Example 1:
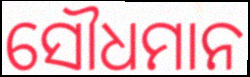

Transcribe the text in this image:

ସୌଧମାନ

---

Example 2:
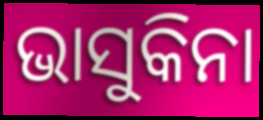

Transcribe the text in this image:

ଭାସୁକିନା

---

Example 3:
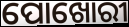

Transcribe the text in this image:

ପୋଖୋରୀ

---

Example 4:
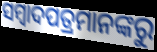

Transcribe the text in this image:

ସମ୍ୱାଦପତ୍ରମାନଙ୍କରୁ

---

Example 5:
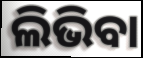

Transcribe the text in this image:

ଲିଭିବା